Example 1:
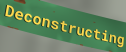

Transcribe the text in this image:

Deconstructing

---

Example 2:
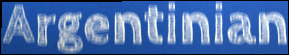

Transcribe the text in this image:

Argentinian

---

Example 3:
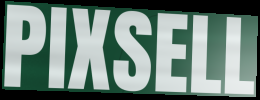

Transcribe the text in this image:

PIXSELL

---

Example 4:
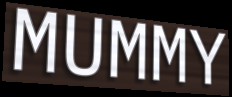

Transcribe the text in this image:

MUMMY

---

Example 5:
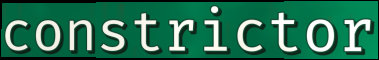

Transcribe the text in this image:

constrictor